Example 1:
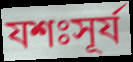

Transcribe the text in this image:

যশঃসূর্য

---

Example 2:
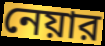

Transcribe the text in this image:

নেয়ার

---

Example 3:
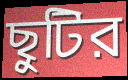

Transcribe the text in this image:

ছুটির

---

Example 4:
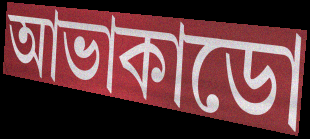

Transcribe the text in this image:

আভাকাডো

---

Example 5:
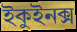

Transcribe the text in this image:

ইকুইনক্স